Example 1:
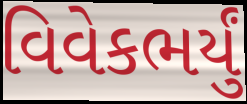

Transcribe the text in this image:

વિવેકભર્યું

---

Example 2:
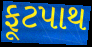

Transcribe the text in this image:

ફૂટપાથ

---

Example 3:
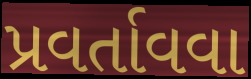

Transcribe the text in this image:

પ્રવર્તાવવા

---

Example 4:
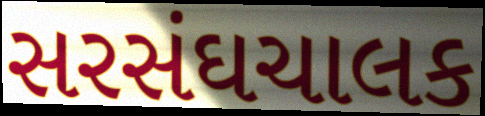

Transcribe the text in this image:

સરસંઘચાલક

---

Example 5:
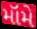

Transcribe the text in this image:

મૉમે